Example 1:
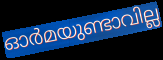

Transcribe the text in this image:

ഓർമയുണ്ടാവില്ല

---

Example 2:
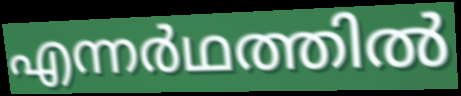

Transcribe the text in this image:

എന്നർഥത്തിൽ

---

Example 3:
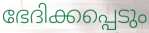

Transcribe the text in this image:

ഭേദിക്കപ്പെടും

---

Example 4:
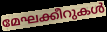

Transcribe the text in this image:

മേഘക്കീറുകൾ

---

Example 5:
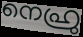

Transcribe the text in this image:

നെഹ്രു